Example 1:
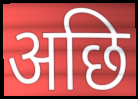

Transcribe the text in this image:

अछि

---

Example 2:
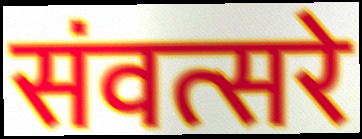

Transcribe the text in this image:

संवत्सरे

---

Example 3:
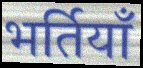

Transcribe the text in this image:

भर्तियाँ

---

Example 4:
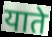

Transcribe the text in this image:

याते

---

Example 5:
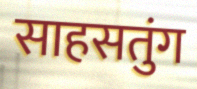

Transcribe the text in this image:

साहसतुंग